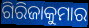
ଗିରିଜାକୁମାର